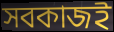
সবকাজই